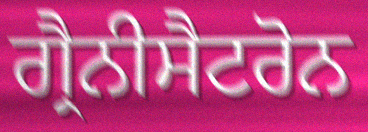
ਗ੍ਰੈਨੀਸੈਟਰੋਨ